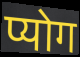
प्योग